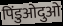
पिंडुओदुओ